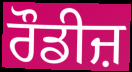
ਰੌਡੀਜ਼